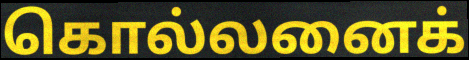
கொல்லனைக்